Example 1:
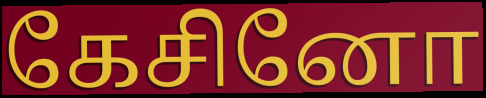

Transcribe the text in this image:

கேசினோ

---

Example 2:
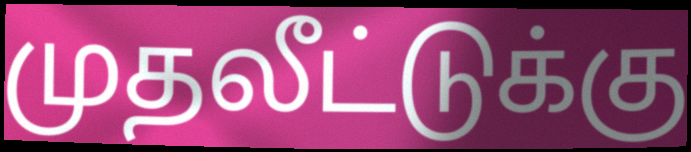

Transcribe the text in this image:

முதலீட்டுக்கு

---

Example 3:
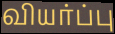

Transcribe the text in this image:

வியர்ப்பு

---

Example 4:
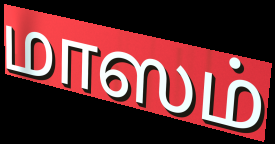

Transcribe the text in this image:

மாஸம்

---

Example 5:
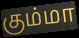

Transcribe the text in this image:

கும்மா